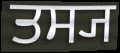
ਤਸ੍ਯ